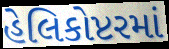
હેલિકોપ્ટરમાં